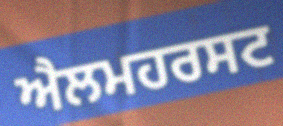
ਐਲਮਹਰਸਟ